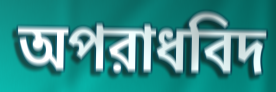
অপরাধবিদ